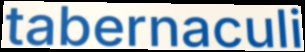
tabernaculi